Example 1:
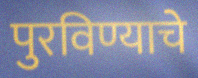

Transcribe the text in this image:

पुरविण्याचे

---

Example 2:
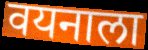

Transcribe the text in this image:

वयनाला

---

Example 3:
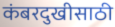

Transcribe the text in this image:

कंबरदुखीसाठी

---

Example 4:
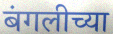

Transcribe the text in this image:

बंगलीच्या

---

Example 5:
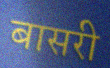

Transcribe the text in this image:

बासरी